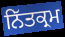
ਨਿੱਤਕ੍ਰਮ